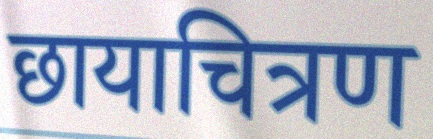
छायाचित्रण